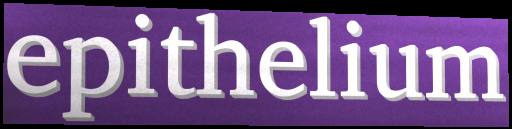
epithelium